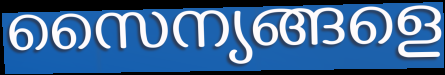
സൈന്യങ്ങളെ